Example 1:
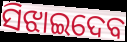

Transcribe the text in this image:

ସିଝାଇଦେବ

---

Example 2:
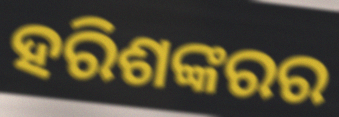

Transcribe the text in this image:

ହରିଶଙ୍କରର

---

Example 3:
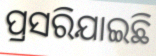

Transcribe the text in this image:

ପ୍ରସରିଯାଇଛି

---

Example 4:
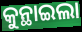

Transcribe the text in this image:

କୁନ୍ଥାଇଲା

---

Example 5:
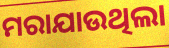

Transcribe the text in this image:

ମରାଯାଉଥିଲା